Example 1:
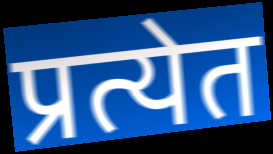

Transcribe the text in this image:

प्रत्येत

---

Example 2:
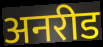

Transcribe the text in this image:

अनरीड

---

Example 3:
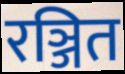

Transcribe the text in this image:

रञ्जित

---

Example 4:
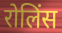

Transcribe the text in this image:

रोलिंस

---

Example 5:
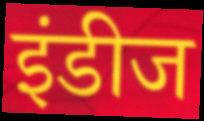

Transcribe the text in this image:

इंडीज